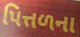
પિત્તળના